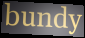
bundy